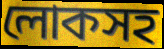
লোকসহ